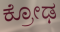
ಕ್ರೋಢ